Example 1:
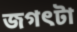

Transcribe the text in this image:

জগৎটা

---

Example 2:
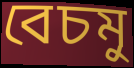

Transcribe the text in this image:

বেচমু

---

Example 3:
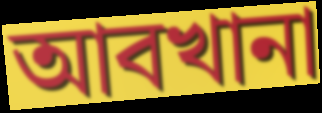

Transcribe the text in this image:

আবখানা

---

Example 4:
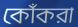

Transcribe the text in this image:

কোঁকরা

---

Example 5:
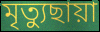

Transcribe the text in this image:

মৃত্যুছায়া